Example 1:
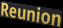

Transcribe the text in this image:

Reunion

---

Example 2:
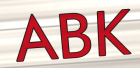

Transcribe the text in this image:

ABK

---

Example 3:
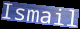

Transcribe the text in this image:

Ismail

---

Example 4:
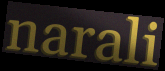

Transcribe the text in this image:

narali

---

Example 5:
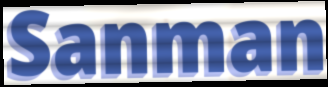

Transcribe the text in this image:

Sanman